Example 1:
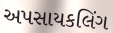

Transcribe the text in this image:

અપસાયકલિંગ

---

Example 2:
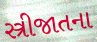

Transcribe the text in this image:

સ્ત્રીજાતના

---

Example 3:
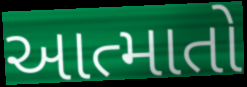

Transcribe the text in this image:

આત્માતો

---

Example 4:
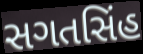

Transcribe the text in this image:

સગતસિંહ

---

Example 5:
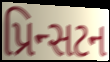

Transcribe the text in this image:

પ્રિન્સટન